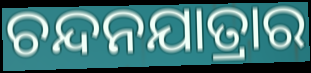
ଚନ୍ଦନଯାତ୍ରାର